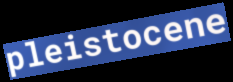
pleistocene